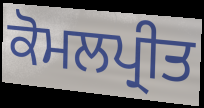
ਕੋਮਲਪ੍ਰੀਤ